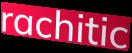
rachitic